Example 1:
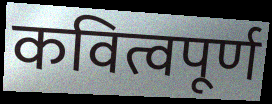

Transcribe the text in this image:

कवित्वपूर्ण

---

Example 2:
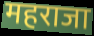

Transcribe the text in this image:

महराजा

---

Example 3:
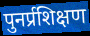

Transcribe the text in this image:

पुनर्प्रशिक्षण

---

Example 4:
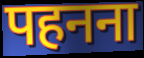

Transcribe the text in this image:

पहनना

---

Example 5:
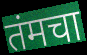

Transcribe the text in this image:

तंमचा